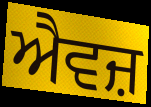
ਐਵਜ਼